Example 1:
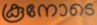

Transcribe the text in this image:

കൂനോടെ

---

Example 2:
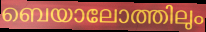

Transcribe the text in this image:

ബെയാലോത്തിലും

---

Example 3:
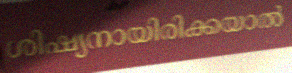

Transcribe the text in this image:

ശിഷ്യനായിരിക്കയാൽ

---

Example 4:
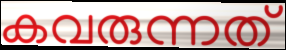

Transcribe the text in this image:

കവരുന്നത്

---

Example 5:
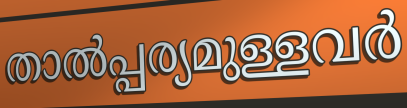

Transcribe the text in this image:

താൽപ്പര്യമുള്ളവർ